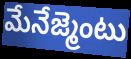
మేనేజ్మెంటు